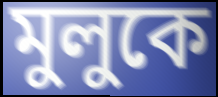
মুলুকে